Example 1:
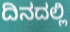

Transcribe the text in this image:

ದಿನದಲ್ಲಿ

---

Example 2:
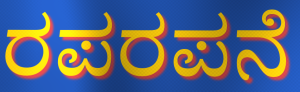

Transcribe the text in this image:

ರಪರಪನೆ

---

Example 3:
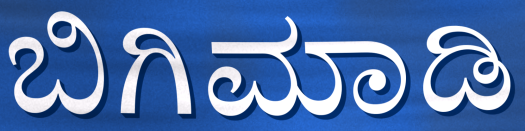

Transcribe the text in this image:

ಬಿಗಿಮಾಡಿ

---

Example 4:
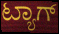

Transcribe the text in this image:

ಟ್ಯಾಗ್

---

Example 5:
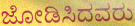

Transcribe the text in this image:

ಜೋಡಿಸಿದವರು